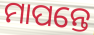
ମାପନ୍ତେ